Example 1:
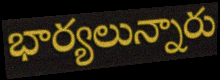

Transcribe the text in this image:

భార్యలున్నారు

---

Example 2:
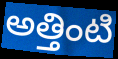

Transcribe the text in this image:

అత్తింటి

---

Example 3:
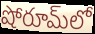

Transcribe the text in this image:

షోరూమ్‌లో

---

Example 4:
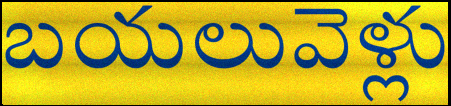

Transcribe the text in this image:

బయలువెళ్లు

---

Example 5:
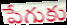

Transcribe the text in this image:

పేగుకు